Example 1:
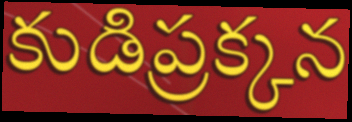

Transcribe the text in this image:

కుడిప్రక్కన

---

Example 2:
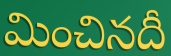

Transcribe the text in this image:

మించినదీ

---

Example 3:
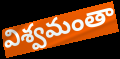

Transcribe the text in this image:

విశ్వమంతా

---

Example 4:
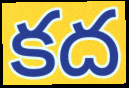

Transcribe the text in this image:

కద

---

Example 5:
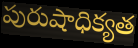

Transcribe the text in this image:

పురుషాధిక్యత